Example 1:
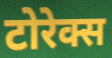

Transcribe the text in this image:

टोरेक्स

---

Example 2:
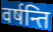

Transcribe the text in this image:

वर्षन्ति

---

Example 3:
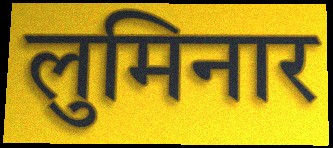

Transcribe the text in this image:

लुमिनार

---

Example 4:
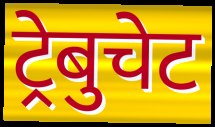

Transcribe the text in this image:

ट्रेबुचेट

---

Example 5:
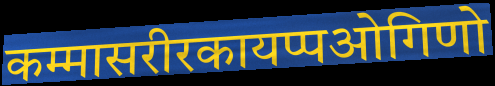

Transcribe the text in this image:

कम्मासरीरकायप्पओगिणो